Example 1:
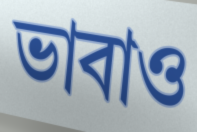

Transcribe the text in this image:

ভাবাও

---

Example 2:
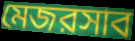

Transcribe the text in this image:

মেজরসাব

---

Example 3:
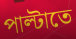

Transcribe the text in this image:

পাল্টাতে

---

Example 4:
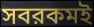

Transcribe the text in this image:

সবরকমই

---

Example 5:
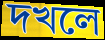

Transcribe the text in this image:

দখলে